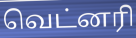
வெட்னரி